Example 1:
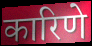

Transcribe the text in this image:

कारिणे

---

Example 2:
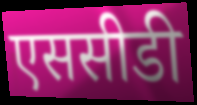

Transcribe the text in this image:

एससीडी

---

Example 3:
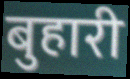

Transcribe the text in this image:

बुहारी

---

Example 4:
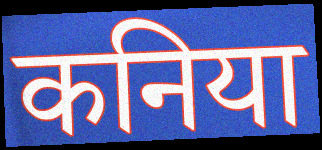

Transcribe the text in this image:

कनिया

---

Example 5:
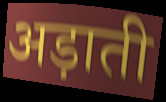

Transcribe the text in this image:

अड़ाती